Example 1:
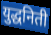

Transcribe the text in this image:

युद्धनिती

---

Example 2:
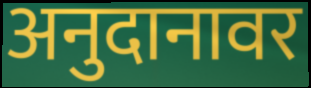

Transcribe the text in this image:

अनुदानावर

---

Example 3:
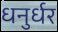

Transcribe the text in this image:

धनुर्धर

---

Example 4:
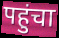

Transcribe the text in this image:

पहुंचा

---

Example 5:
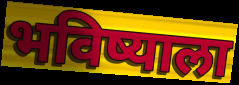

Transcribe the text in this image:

भविष्याला